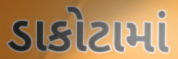
ડાકોટામાં